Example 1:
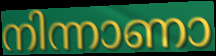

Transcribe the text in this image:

നിന്നാണാ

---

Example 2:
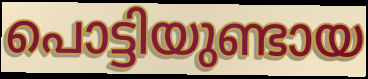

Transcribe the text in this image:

പൊട്ടിയുണ്ടായ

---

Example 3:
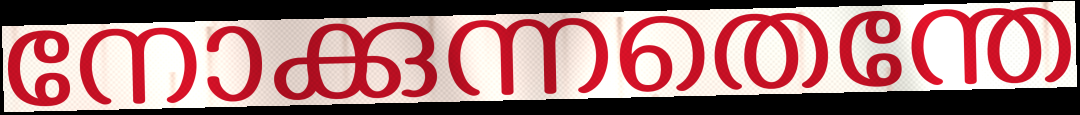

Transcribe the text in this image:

നോക്കുന്നതെന്തേ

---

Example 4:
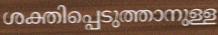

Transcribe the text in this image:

ശക്തിപ്പെടുത്താനുള്ള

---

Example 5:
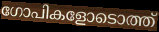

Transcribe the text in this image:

ഗോപികളോടൊത്ത്